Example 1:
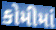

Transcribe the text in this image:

કોમીમાં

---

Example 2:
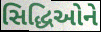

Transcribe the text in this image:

સિદ્ધિઓને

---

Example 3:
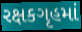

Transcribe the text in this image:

રક્ષકગૃહમાં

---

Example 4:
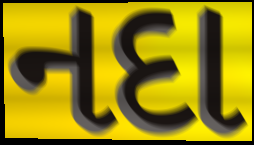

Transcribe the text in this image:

નદા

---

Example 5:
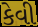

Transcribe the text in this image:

કેવી